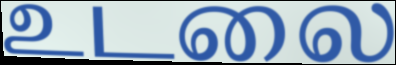
உடலை